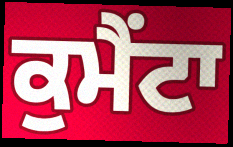
ਕੁਮੈਂਟਾ